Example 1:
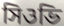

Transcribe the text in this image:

সিওভি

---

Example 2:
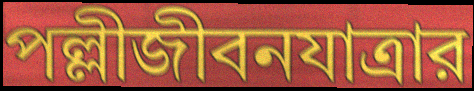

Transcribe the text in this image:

পল্লীজীবনযাত্রার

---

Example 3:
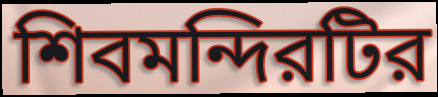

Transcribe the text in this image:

শিবমন্দিরটির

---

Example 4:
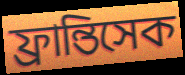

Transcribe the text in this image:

ফ্রান্তিসেক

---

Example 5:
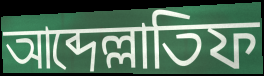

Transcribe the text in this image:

আব্দেল্লাতিফ